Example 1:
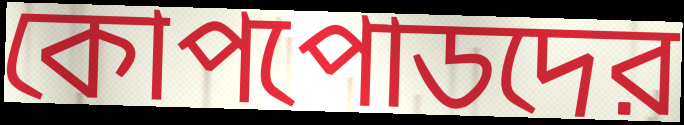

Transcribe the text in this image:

কোপপোডদের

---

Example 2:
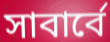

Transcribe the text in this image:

সাবার্বে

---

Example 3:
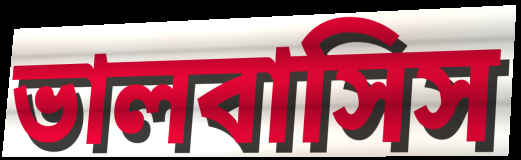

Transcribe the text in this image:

ভালবাসিস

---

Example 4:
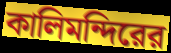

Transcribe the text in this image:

কালিমন্দিরের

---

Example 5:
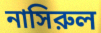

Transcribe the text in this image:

নাসিরুল